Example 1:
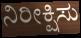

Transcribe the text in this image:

ನಿರೀಕ್ಷಿಸು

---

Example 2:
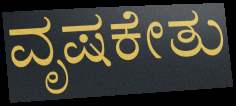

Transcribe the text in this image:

ವೃಷಕೇತು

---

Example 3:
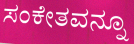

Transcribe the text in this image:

ಸಂಕೇತವನ್ನೂ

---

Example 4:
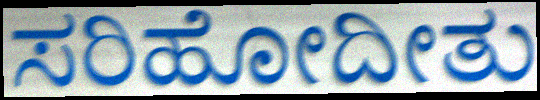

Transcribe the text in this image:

ಸರಿಹೋದೀತು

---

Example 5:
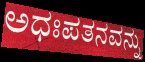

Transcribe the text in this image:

ಅಧಃಪತನವನ್ನು